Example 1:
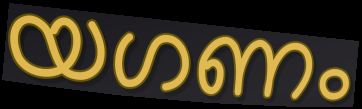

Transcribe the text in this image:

യഗണം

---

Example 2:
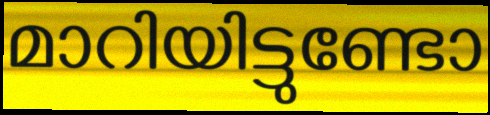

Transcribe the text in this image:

മാറിയിട്ടുണ്ടോ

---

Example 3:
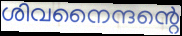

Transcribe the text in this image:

ശിവനൈന്ദന്റെ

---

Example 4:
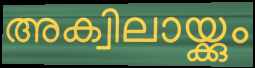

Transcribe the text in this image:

അക്വിലായ്ക്കും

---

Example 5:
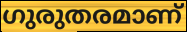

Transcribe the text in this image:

ഗുരുതരമാണ്